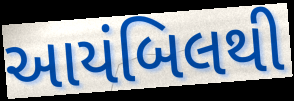
આયંબિલથી